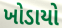
ખોડાયો